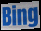
Bing